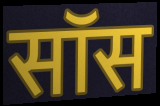
सॉस